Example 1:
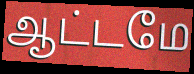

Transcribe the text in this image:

ஆட்டமே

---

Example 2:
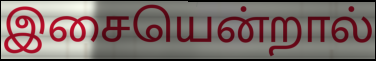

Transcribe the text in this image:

இசையென்றால்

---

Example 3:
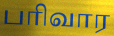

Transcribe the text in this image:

பரிவார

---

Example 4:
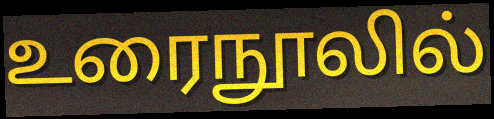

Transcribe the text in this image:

உரைநூலில்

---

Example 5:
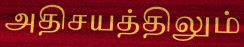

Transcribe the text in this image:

அதிசயத்திலும்